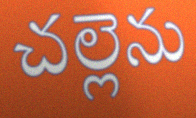
చల్లెను